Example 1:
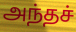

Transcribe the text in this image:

அந்தச்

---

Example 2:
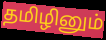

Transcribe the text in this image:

தமிழினும்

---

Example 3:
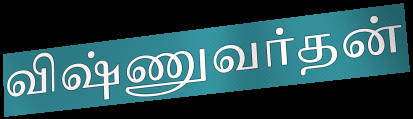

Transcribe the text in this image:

விஷ்ணுவர்தன்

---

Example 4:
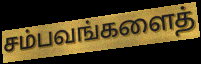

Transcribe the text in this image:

சம்பவங்களைத்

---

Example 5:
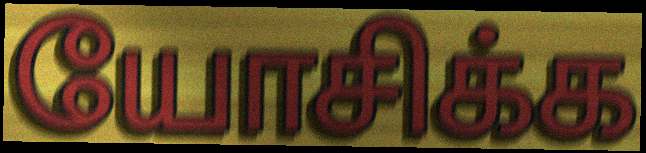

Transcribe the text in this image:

யோசிக்க